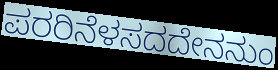
ಪರರಿನೆಳಸದದೇನನುಂ